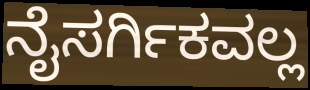
ನೈಸರ್ಗಿಕವಲ್ಲ